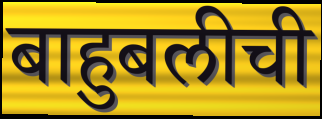
बाहुबलीची